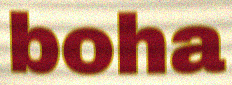
boha